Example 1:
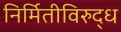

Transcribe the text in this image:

निर्मितीविरुद्ध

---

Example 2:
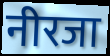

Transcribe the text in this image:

नीरजा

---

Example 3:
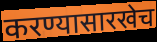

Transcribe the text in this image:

करण्यासारखेच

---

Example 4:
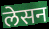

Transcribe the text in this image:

लेसन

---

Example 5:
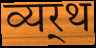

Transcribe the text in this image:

व्यर्थ